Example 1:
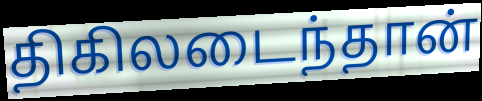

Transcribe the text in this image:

திகிலடைந்தான்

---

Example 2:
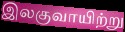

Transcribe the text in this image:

இலகுவாயிற்று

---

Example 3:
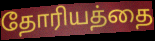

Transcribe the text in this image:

தோரியத்தை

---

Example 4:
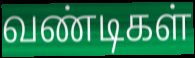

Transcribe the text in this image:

வண்டிகள்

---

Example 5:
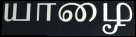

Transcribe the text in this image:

யாழை